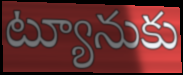
ట్యూనుకు